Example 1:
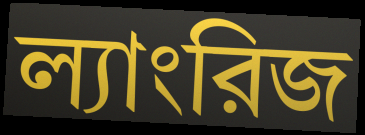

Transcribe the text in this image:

ল্যাংরিজ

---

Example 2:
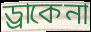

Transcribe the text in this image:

ড্রাকেনা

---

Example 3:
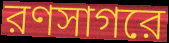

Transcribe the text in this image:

রণসাগরে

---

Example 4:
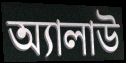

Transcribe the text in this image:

অ্যালাউ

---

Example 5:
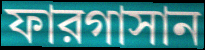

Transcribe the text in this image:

ফারগাসান